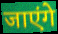
जाएंगे